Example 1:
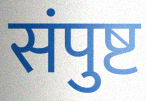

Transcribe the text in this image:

संपुष्ट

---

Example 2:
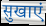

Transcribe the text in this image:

सुखाएं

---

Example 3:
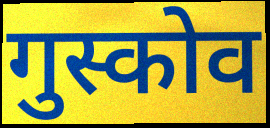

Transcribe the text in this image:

गुस्कोव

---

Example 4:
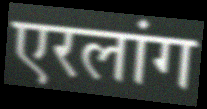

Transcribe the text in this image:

एरलांग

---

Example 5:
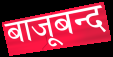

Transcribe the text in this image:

बाजूबन्द